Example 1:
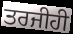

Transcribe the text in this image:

ਤਰਜੀਹੀ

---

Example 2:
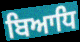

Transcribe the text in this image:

ਬਿਆਧਿ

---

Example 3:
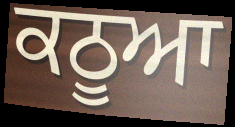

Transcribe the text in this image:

ਕਠੂਆ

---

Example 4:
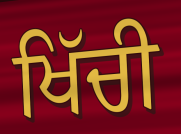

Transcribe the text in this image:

ਖਿੱਚੀ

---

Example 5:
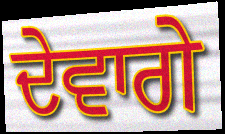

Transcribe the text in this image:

ਦੇਵਾਗੇ